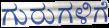
ಗುರುಗಳಿಗೆ